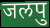
जलपु